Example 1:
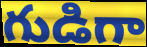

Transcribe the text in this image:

గుడిగా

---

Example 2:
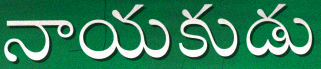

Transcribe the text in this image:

నాయకుడు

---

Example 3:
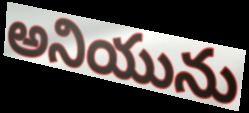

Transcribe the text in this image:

అనియును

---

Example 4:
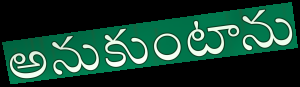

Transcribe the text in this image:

అనుకుంటాను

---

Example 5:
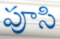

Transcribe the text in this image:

పూసి